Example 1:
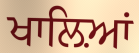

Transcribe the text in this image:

ਖਾਲ਼ਿਆਂ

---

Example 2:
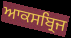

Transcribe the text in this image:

ਆਕਸਬ੍ਰਿਜ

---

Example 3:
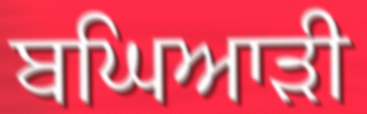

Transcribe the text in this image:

ਬਘਿਆੜੀ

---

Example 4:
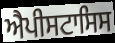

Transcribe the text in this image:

ਐਪੀਸਟਾਸਿਸ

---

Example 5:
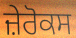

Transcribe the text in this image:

ਜ਼ੇਰੋਕਸ